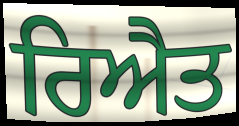
ਰਿਐਤ